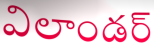
విలాండర్